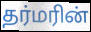
தர்மரின்